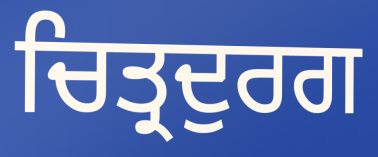
ਚਿਤ੍ਰਦੁਰਗ